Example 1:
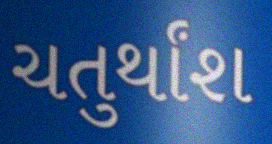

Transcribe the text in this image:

ચતુર્થાંશ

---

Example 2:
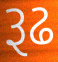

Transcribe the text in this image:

રૂઢ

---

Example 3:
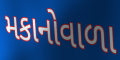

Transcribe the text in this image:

મકાનોવાળા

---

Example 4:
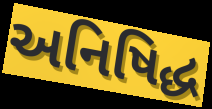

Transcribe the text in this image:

અનિષિદ્ધ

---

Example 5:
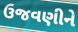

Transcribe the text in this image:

ઉજવણીને